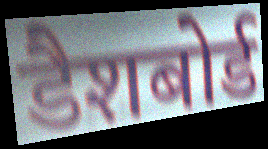
डैशबोर्ड